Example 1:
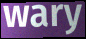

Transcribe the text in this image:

wary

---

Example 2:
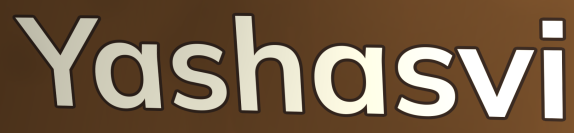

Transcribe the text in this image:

Yashasvi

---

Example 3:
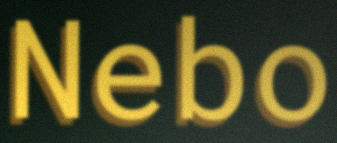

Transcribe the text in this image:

Nebo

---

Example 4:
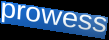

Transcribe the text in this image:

prowess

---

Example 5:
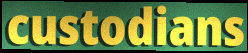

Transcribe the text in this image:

custodians